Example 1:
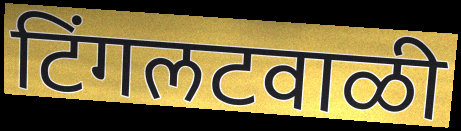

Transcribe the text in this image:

टिंगलटवाळी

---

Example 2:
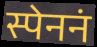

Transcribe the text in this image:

स्पेननं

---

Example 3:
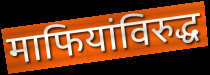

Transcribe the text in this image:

माफियांविरुद्ध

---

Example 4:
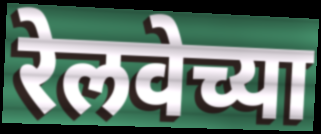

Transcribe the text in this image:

रेलवेच्या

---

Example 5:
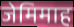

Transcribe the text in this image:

जेमिमाह